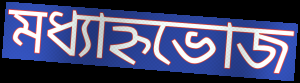
মধ্যাহ্নভোজ